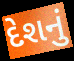
દેશનું